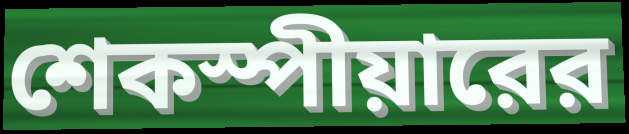
শেকস্পীয়ারের